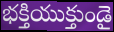
భక్తియుక్తుండై